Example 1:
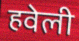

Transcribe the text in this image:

हवेली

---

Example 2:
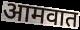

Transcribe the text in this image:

आमवात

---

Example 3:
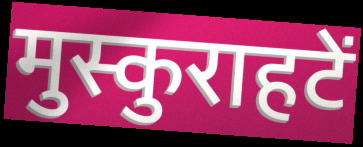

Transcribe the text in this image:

मुस्कुराहटें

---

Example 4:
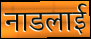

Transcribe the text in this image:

नाडलाई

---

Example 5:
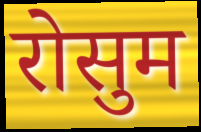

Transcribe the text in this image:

रोसुम